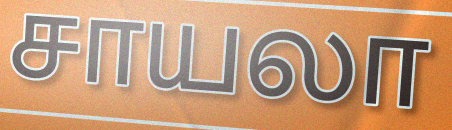
சாயலா